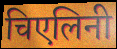
चिएलिनी